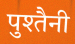
पुश्तैनी